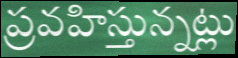
ప్రవహిస్తున్నట్లు